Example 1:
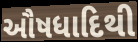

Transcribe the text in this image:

ઔષધાદિથી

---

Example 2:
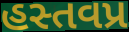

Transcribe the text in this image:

હસ્તવપ્ર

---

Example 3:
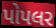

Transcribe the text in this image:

પોપલર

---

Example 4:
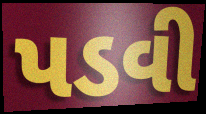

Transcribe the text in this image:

પડવી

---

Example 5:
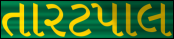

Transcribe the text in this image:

તારટપાલ